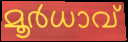
മൂർധാവ്